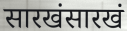
सारखंसारखं